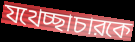
যথেচ্ছাচারকে